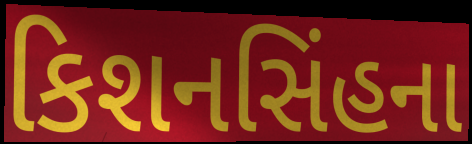
કિશનસિંહના